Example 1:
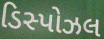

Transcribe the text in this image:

ડિસ્પોઝલ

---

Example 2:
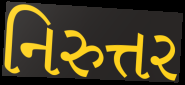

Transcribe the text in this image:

નિરુત્તર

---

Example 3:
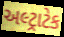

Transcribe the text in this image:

અલ્ટ્રાટેક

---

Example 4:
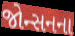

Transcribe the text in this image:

જોન્સનના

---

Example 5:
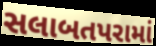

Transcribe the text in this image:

સલાબતપરામાં